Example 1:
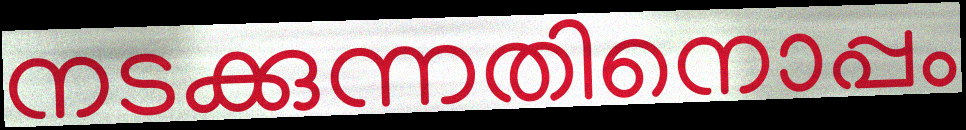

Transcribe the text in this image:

നടക്കുന്നതിനൊപ്പം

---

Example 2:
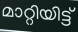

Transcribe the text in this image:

മാറ്റിയിട്ട്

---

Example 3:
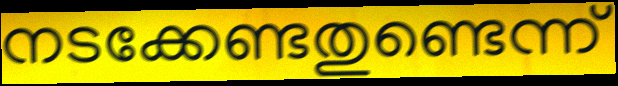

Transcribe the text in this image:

നടക്കേണ്ടതുണ്ടെന്ന്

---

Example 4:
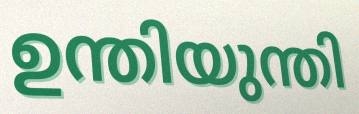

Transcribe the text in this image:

ഉന്തിയുന്തി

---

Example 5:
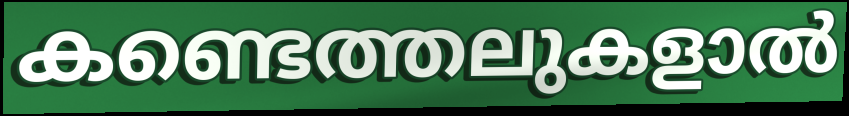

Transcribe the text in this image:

കണ്ടെത്തലുകളാൽ